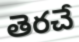
తెరచే